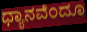
ಧ್ಯಾನವೆಂದೂ